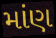
માંણ